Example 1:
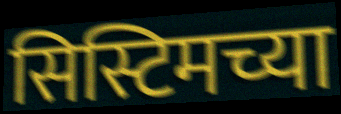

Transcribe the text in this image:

सिस्टिमच्या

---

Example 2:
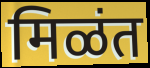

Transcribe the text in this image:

मिळंत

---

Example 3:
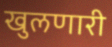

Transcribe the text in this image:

खुलणारी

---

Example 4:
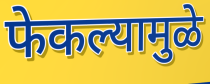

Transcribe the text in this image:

फेकल्यामुळे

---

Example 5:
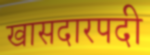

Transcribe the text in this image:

खासदारपदी